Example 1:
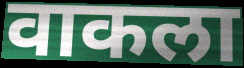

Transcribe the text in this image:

वाकला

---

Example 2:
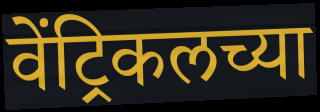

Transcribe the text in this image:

वेंट्रिकलच्या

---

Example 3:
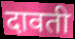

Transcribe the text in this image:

दावती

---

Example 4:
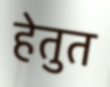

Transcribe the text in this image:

हेतुत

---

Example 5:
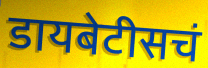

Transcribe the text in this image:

डायबेटीसचं